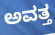
ಅವತ್ತ